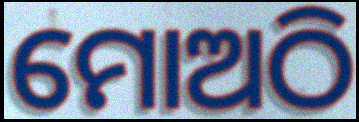
ମୋଅଠି